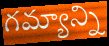
గమ్యాన్ని